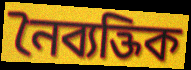
নৈব্যক্তিক